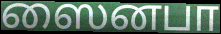
ஸைனபா